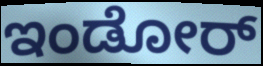
ಇಂಡೋರ್